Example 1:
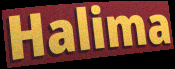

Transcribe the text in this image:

Halima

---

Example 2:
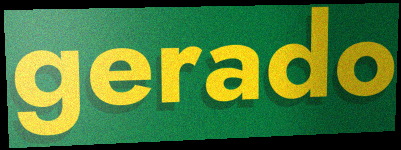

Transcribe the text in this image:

gerado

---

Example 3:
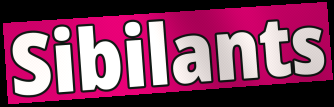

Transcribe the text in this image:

Sibilants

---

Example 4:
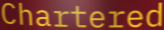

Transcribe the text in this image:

Chartered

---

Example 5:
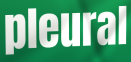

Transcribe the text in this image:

pleural